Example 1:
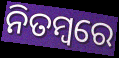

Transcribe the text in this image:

ନିତମ୍ୱରେ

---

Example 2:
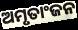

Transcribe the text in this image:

ଅମୃତାଂଜନ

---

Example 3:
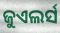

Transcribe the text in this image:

ଜୁଏଲର୍ସ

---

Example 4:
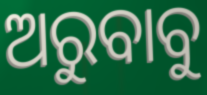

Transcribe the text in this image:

ଅରୁବାବୁ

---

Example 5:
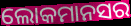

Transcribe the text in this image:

ଲୋକମାନସର